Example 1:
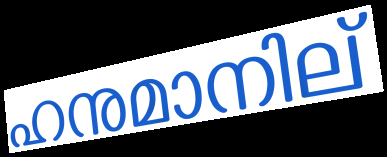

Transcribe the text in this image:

ഹനുമാനില്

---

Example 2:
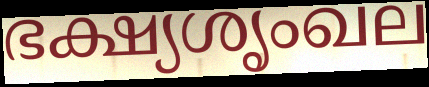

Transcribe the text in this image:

ഭക്ഷ്യശൃംഖല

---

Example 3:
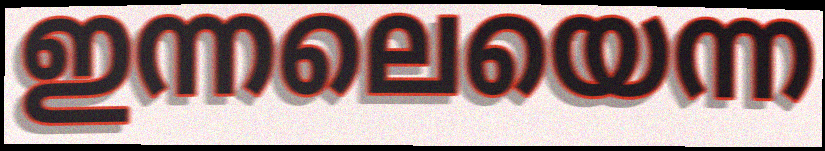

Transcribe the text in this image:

ഇന്നലെയെന്ന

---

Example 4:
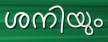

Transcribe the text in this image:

ശനിയും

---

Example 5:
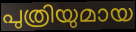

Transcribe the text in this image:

പുത്രിയുമായ